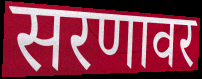
सरणावर